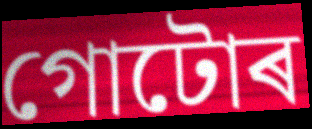
গোটোৰ